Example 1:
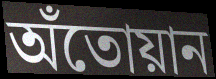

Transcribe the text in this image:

অঁতোয়ান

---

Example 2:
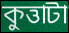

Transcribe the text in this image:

কুত্তাটা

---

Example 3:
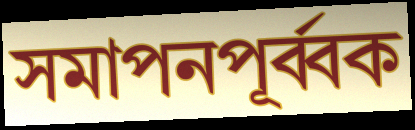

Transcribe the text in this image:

সমাপনপূর্ব্বক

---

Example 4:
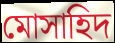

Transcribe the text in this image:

মোসাহিদ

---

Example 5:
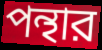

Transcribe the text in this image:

পন্থার